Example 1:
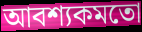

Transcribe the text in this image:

আবশ্যকমতো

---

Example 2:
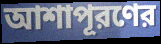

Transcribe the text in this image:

আশাপূরণের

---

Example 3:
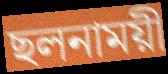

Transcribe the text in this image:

ছলনাময়ী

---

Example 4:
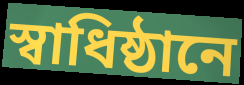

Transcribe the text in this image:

স্বাধিষ্ঠানে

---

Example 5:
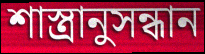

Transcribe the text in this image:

শাস্ত্রানুসন্ধান